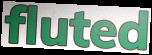
fluted